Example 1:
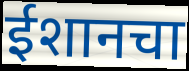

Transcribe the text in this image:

ईशानचा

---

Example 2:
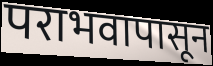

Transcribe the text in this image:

पराभवापासून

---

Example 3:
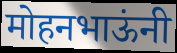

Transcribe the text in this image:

मोहनभाऊंनी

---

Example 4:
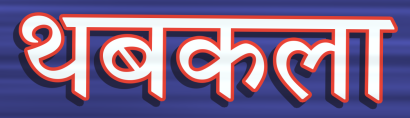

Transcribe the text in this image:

थबकला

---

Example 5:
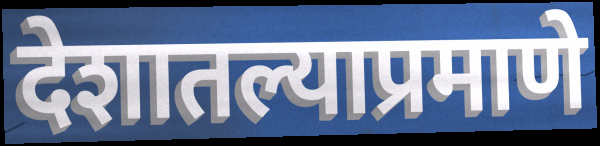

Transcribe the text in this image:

देशातल्याप्रमाणे